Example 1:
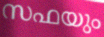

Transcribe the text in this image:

സഫയും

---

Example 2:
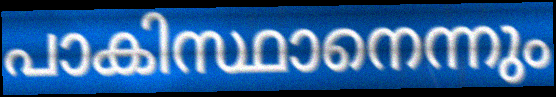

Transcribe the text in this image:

പാകിസ്ഥാനെന്നും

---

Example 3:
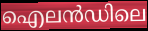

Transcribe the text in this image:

ഐലൻഡിലെ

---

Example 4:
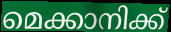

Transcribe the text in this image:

മെക്കാനിക്ക്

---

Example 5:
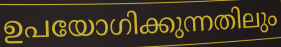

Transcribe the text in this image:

ഉപയോഗിക്കുന്നതിലും